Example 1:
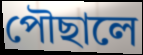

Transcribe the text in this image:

পৌছালে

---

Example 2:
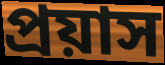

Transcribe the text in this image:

প্রয়াস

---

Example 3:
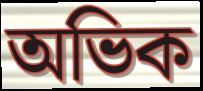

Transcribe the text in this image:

অভিক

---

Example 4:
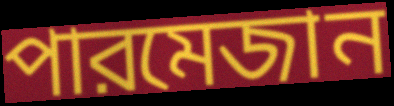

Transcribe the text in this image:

পারমেজান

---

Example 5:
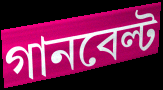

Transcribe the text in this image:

গানবেল্ট